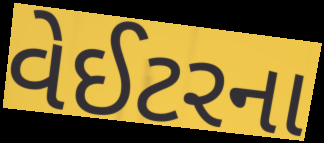
વેઈટરના